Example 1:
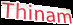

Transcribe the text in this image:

Thinam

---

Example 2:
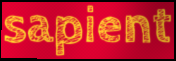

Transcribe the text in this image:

sapient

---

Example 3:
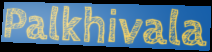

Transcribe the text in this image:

Palkhivala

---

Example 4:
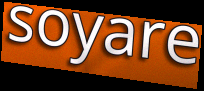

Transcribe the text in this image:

soyare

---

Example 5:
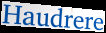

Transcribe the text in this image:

Haudrere